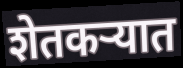
शेतकऱ्यात